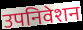
उपनिवेशन